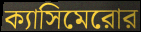
ক্যাসিমেরোর